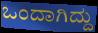
ಒಂದಾಗಿದ್ದು